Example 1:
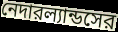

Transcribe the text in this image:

নেদারল্যান্ডসের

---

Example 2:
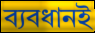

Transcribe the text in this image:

ব্যবধানই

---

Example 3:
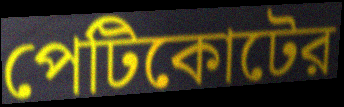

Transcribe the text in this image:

পেটিকোটের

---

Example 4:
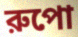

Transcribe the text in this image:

রুপো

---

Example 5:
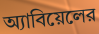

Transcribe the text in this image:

অ্যাবিয়েলের